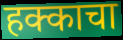
हक्काचा